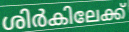
ശിർകിലേക്ക്